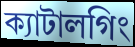
ক্যাটালগিং